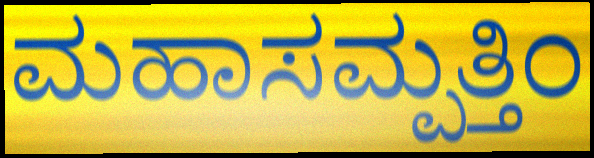
ಮಹಾಸಮ್ಪತ್ತಿಂ